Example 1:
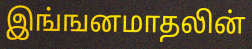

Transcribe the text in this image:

இங்ஙனமாதலின்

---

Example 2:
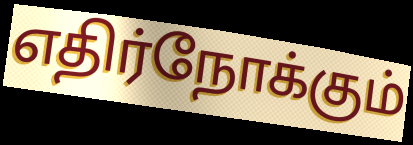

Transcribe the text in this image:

எதிர்நோக்கும்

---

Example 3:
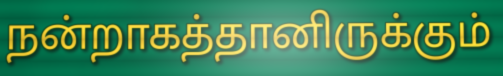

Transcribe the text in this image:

நன்றாகத்தானிருக்கும்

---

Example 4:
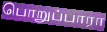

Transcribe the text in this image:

பொறுப்பாரா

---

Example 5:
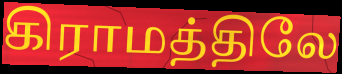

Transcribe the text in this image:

கிராமத்திலே